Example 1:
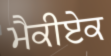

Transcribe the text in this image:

ਮੈਕੀਏਕ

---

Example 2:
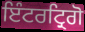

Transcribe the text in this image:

ਇੰਟਰਟ੍ਰਿਗੋ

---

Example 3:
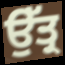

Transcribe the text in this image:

ਉੱਤ੍ਰ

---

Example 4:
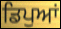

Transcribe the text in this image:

ਡਿਪੁਆਂ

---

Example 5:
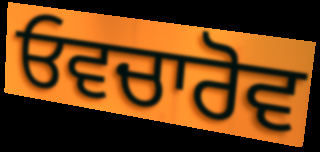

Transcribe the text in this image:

ਓਵਚਾਰੋਵ